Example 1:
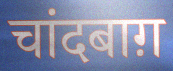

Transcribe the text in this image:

चांदबाग़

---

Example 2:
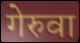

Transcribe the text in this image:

गेरुवा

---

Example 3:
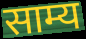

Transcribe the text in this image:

साम्‍य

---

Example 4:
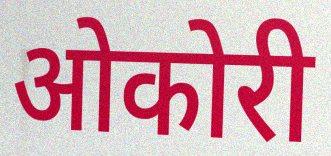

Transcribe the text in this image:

ओकोरी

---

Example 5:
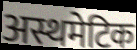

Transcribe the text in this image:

अस्थमेटिक